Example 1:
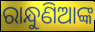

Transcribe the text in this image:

ରାନ୍ଧୁଣିଆଙ୍କ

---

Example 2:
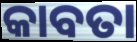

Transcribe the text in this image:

କାବତା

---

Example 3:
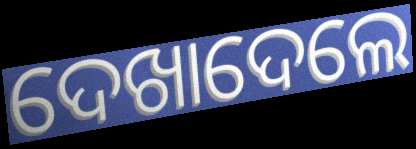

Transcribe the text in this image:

ଦେଖାଦେଲେ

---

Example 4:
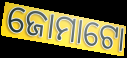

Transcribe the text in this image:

ଜୋମାଟୋ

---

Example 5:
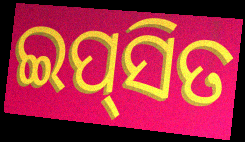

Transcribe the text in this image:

ଇପ୍‌ସିତ